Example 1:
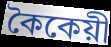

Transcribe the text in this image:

কৈকেয়ী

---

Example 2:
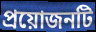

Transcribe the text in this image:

প্রয়োজনটি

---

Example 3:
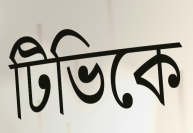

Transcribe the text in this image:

টিভিকে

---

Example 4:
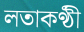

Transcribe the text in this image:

লতাকণ্ঠী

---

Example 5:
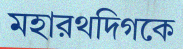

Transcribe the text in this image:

মহারথদিগকে